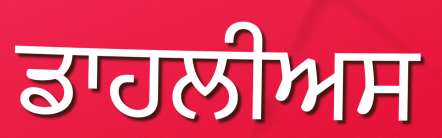
ਡਾਹਲੀਅਸ